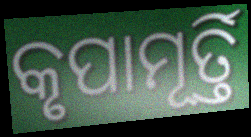
କୃପାମୂର୍ତ୍ତି